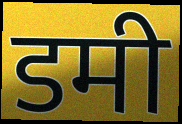
डमी